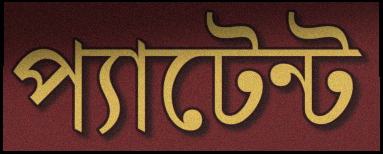
প্যাটেন্ট